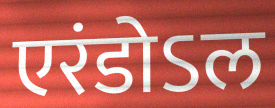
एरंडोऽल